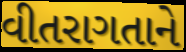
વીતરાગતાને